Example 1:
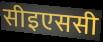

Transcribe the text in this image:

सीइएससी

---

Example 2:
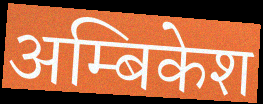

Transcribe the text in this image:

अम्बिकेश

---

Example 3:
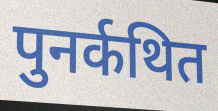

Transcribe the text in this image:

पुनर्कथित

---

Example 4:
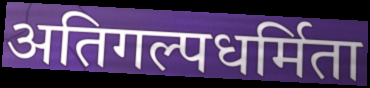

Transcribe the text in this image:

अतिगल्पधर्मिता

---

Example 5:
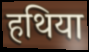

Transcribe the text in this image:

हथिया